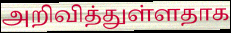
அறிவித்துள்ளதாக